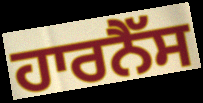
ਹਾਰਨੈੱਸ